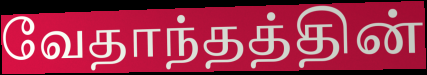
வேதாந்தத்தின்